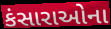
કંસારાઓના